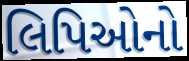
લિપિઓનો